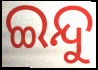
ଇନ୍ଦୁ